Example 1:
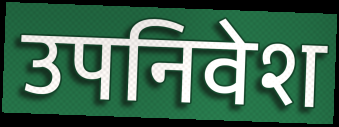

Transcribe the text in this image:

उपनिवेश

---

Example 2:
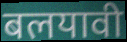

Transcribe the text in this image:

बलयावी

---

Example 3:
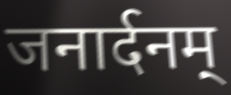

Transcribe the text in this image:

जनार्दनम्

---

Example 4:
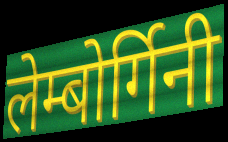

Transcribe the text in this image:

लेम्बोर्गिनी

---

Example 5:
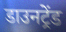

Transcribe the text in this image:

डाउनट्रेंड